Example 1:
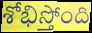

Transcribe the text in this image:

శోభిస్తోంది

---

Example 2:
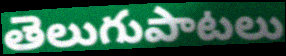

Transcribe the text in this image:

తెలుగుపాటలు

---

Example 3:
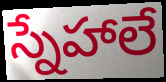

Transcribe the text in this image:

స్నేహాలే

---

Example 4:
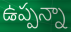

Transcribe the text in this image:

ఉప్పన్నా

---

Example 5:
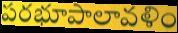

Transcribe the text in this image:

పరభూపాలావళిం